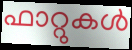
ഫാറ്റുകൾ